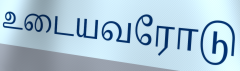
உடையவரோடு